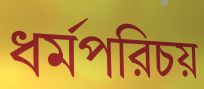
ধর্মপরিচয়